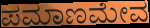
ಪಮಾಣಮೇವ